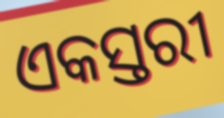
ଏକସ୍ତରୀ